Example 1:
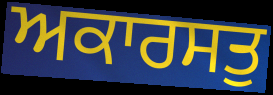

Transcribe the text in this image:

ਅਕਾਰਸਤੁ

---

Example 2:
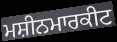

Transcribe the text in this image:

ਮਸ਼ੀਨਮਾਰਕੀਟ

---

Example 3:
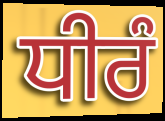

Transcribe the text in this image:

ਧੀਰੰ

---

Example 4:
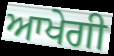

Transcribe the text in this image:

ਆਖੇਗੀ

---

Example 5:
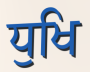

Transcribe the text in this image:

ਧੁਖਿ